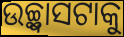
ଉଚ୍ଛ୍ୱାସଟାକୁ